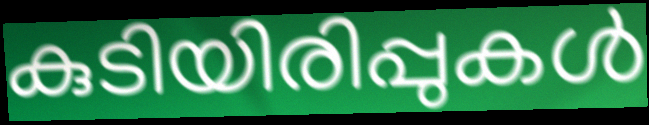
കുടിയിരിപ്പുകൾ